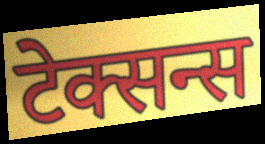
टेक्सन्स